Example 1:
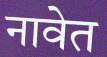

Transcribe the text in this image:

नावेत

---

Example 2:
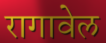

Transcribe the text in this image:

रागावेल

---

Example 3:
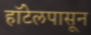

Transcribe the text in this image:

हॉटेलपासून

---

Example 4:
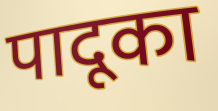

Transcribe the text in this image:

पादूका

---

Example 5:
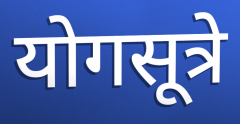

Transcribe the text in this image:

योगसूत्रे